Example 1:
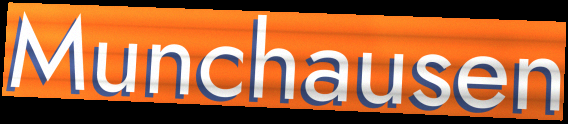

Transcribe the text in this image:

Munchausen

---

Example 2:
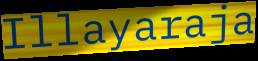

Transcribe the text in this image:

Illayaraja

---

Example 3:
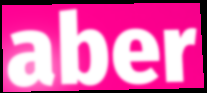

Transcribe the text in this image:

aber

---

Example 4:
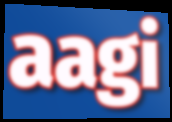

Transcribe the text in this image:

aagi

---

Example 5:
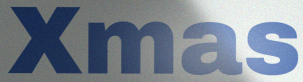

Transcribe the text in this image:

Xmas